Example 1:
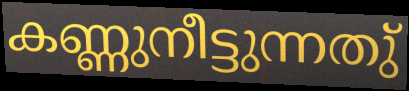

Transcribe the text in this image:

കണ്ണുനീട്ടുന്നതു്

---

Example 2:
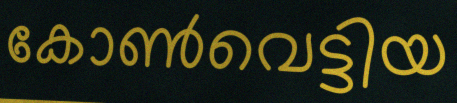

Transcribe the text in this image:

കോൺവെട്ടിയ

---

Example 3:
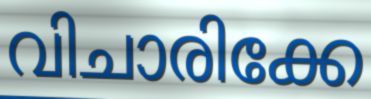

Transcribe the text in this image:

വിചാരിക്കേ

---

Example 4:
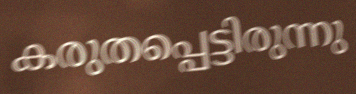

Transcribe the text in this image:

കരുതപ്പെട്ടിരുന്നു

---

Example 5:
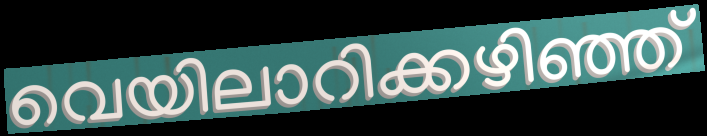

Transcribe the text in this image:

വെയിലാറിക്കഴിഞ്ഞ്